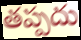
తప్పదు